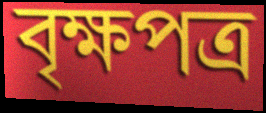
বৃক্ষপত্র